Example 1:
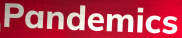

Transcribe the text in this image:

Pandemics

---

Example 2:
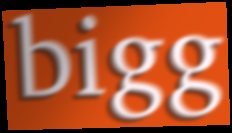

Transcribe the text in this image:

bigg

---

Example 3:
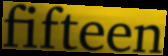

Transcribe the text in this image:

fifteen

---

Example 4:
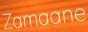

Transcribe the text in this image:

Zamaane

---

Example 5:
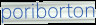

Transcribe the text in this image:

poriborton